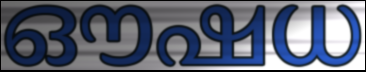
ഔഷധ